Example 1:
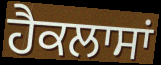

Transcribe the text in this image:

ਹੈਕਲਾਸਾਂ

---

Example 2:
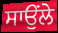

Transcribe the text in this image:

ਸਾਉਂਲੇ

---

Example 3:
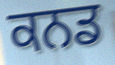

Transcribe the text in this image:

ਕਨਡ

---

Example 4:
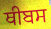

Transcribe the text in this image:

ਥੀਬਸ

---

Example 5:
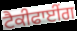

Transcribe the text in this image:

ਟੈਕੀਫਾਈਂਗ